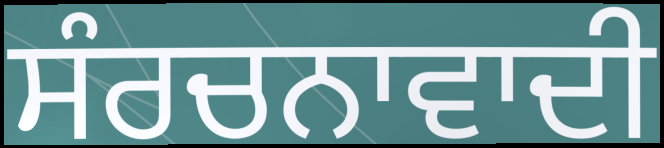
ਸੰਰਚਨਾਵਾਦੀ